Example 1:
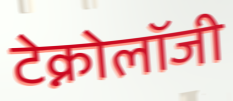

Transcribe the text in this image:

टेक्नोलॉजी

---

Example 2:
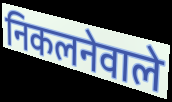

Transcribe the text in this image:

निकलनेवाले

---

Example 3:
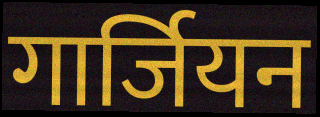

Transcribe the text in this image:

गार्जियन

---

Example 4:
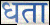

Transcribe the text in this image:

धता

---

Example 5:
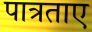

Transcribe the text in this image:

पात्रताए